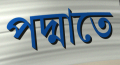
পদ্মাতে